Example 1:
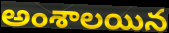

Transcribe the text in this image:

అంశాలయిన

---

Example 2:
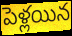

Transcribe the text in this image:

పెళ్లయిన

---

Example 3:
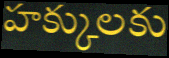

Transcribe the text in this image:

హక్కులకు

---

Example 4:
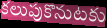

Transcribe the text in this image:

కలుపుకొనుటకు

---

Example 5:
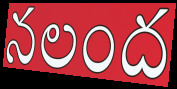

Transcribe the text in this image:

నలంద